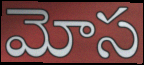
మోస